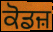
ਕੋਡਜ਼